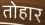
तोहार